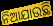
ନିଆଯାଉଛି